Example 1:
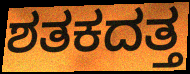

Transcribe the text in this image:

ಶತಕದತ್ತ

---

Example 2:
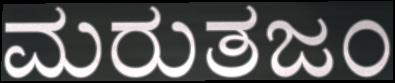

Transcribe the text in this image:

ಮರುತಜಂ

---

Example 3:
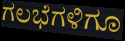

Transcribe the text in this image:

ಗಲಭೆಗಳಿಗೂ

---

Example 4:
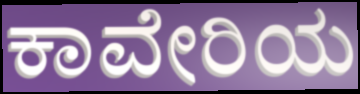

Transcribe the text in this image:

ಕಾವೇರಿಯ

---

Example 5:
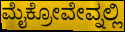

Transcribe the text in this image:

ಮೈಕ್ರೋವೇವ್ನಲ್ಲಿ